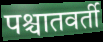
पश्चातवर्ती